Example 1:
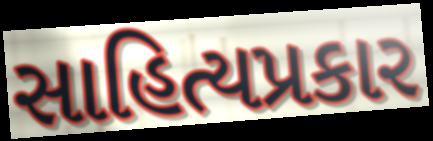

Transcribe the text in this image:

સાહિત્યપ્રકાર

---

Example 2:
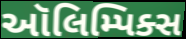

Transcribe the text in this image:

ઑલિમ્પિક્સ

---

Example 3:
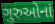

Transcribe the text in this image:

ગુરુઓનાં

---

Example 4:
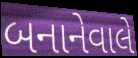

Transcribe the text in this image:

બનાનેવાલે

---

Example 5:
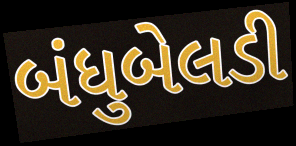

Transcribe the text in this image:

બંધુબેલડી